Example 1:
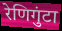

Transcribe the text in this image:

रेणिगुंटा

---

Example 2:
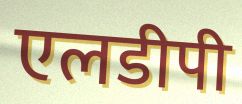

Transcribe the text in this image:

एलडीपी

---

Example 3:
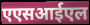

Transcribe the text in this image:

एएसआईएल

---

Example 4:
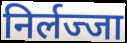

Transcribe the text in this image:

निर्लज्जा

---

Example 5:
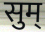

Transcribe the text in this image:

सुम्